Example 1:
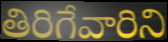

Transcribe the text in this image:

తిరిగేవారిని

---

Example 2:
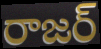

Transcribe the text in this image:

రాజర్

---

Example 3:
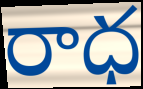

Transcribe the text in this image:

రాధ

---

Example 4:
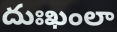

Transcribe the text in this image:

దుఃఖంలా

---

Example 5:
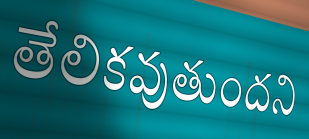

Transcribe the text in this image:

తేలికవుతుందని